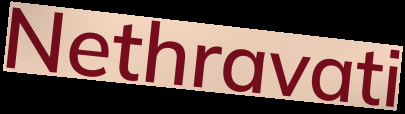
Nethravati